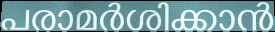
പരാമർശിക്കാൻ